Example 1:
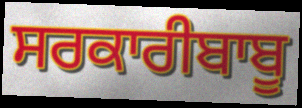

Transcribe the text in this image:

ਸਰਕਾਰੀਬਾਬੂ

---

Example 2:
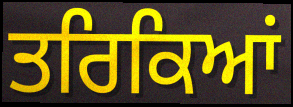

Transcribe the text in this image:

ਤਰਿਕਿਆਂ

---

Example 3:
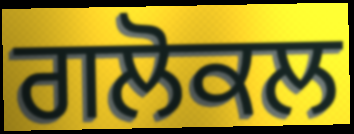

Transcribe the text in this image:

ਗਲੋਕਲ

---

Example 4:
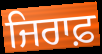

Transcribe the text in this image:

ਜਿਰਾਫ਼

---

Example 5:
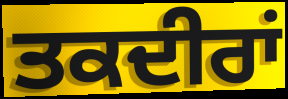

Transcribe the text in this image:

ਤਕਦੀਰਾਂ